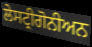
ਲੇਸਟ੍ਰੀਗੋਨੀਅਨ